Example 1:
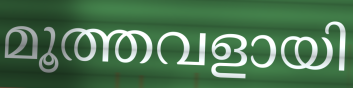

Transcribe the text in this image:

മൂത്തവളായി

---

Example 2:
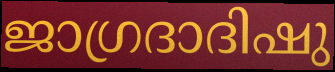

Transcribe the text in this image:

ജാഗ്രദാദിഷു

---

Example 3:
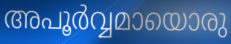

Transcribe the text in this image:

അപൂർവ്വമായൊരു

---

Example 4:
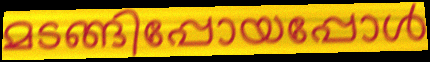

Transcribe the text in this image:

മടങ്ങിപ്പോയപ്പോൾ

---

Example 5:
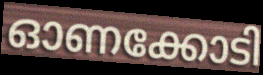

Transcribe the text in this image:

ഓണക്കോടി